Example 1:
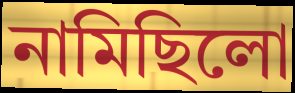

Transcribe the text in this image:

নামিছিলো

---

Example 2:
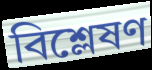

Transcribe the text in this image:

বিশ্লেষণ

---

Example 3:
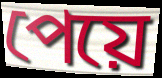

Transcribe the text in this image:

পেয়ে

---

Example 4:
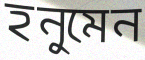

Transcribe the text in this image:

হনুমেন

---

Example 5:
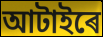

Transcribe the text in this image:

আটাইৰে